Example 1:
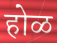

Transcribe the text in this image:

होळ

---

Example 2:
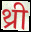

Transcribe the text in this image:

थ्री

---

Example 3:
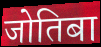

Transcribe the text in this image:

जोतिबा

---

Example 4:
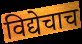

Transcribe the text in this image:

विद्येचाच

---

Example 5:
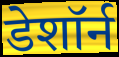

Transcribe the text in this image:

डेशॉर्न